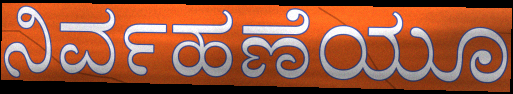
ನಿರ್ವಹಣೆಯೂ